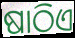
ଷାଠିଏ